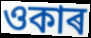
ওকাৰ